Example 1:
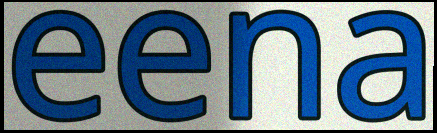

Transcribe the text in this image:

eena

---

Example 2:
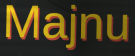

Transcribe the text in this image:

Majnu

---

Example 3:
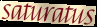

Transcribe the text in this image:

saturatus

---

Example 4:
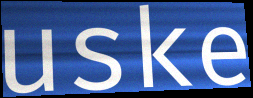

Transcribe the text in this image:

uske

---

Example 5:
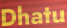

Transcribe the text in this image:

Dhatu